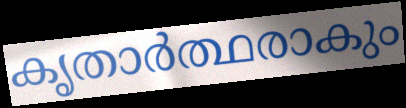
കൃതാർത്ഥരാകും